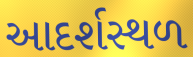
આદર્શસ્થળ